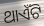
ଥାଏଁଟି